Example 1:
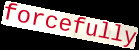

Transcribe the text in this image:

forcefully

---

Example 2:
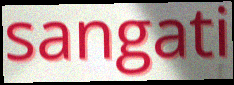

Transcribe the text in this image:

sangati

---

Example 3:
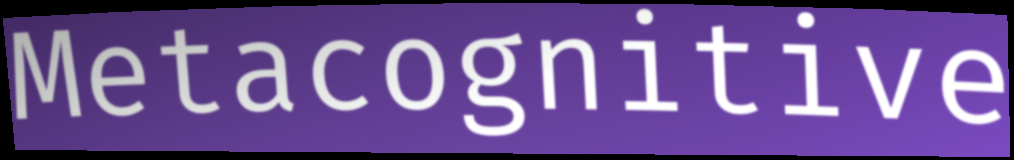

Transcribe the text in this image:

Metacognitive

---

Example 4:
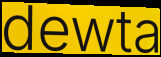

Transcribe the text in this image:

dewta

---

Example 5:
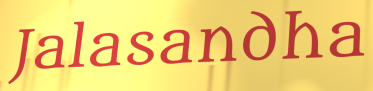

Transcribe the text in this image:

Jalasandha